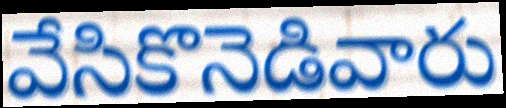
వేసికొనెడివారు